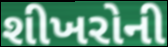
શીખરોની